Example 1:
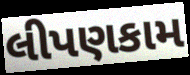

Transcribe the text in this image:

લીપણકામ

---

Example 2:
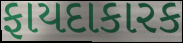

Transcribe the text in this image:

ફાયદાકારક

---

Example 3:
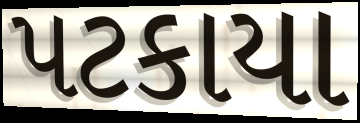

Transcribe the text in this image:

પટકાયા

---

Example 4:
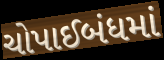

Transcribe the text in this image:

ચોપાઈબંધમાં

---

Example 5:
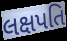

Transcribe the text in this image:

લક્ષપતિ